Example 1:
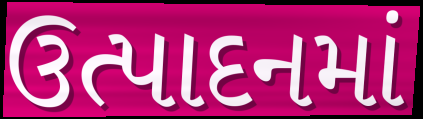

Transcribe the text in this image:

ઉત્પાદનમાં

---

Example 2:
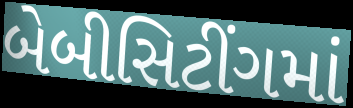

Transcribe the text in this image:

બેબીસિટીંગમાં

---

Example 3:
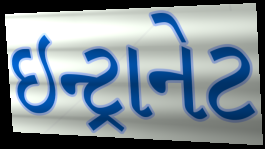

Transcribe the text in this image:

ઇન્ટ્રાનેટ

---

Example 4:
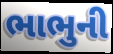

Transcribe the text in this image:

ભાભુની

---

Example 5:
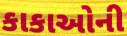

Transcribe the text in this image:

કાકાઓની